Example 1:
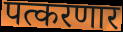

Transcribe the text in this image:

पत्करणार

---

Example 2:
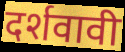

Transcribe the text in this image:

दर्शवावी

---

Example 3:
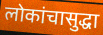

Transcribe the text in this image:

लोकांचासुद्धा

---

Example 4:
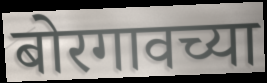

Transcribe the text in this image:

बोरगावच्या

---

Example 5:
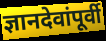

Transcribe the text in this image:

ज्ञानदेवांपूर्वी